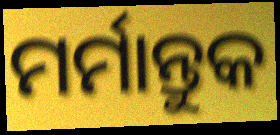
ମର୍ମାନ୍ତୁକ